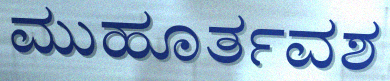
ಮುಹೂರ್ತವಶ